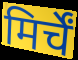
मिर्चें